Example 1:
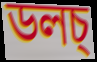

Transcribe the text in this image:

ডলচ্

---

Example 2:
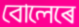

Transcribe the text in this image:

বোলেৰে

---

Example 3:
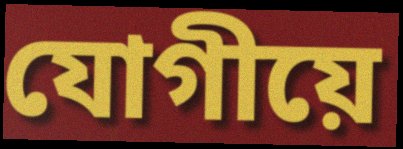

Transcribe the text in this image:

যোগীয়ে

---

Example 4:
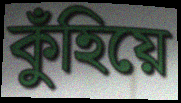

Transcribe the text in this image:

কুঁহিয়ে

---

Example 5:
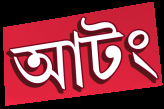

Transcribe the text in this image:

আটং